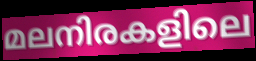
മലനിരകളിലെ